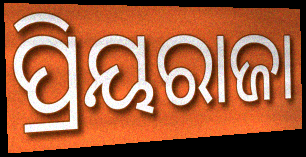
ପ୍ରିୟରାଜା